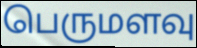
பெருமளவு